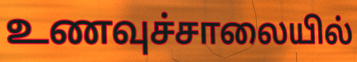
உணவுச்சாலையில்